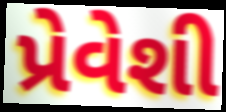
પ્રેવેશી